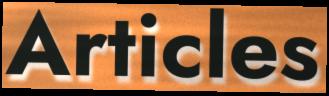
Articles